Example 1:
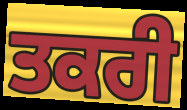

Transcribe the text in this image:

ਤਕਰੀ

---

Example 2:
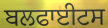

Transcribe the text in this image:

ਬਲਫਾਈਟਸ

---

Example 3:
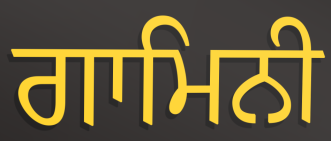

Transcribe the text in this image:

ਗਾਮਿਨੀ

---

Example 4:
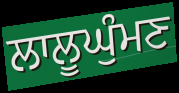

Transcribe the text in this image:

ਲਾਲੂਘੁੰਮਣ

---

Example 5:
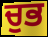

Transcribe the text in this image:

ਚੁਭ